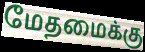
மேதமைக்கு